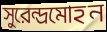
সুরেন্দ্রমোহন